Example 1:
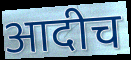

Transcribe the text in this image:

आदीच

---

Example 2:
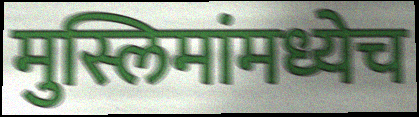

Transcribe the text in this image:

मुस्लिमांमध्येच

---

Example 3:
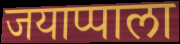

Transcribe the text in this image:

जयाप्पाला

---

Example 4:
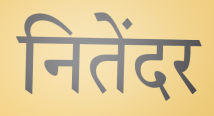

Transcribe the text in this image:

नितेंदर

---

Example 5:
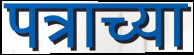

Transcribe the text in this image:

पत्राच्या